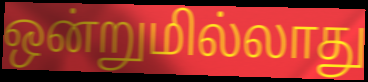
ஒன்றுமில்லாது